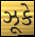
ઝૂકે